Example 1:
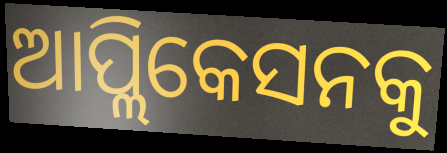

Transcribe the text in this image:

ଆପ୍ଲିକେସନକୁ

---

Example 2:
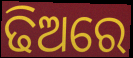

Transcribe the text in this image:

ଢିଅରେ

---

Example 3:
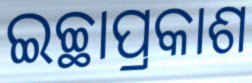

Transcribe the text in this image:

ଇଚ୍ଛାପ୍ରକାଶ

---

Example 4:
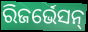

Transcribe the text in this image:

ରିଜର୍ଭେସନ୍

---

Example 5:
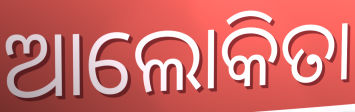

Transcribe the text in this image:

ଆଲୋକିତା